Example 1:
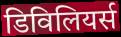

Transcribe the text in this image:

डिविलियर्स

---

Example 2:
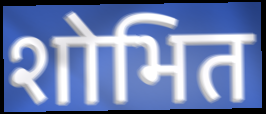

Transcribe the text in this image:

शोभित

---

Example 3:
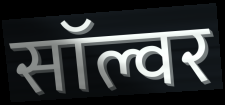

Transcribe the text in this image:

सॉल्वर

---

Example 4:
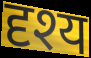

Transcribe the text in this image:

दृश्‍य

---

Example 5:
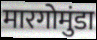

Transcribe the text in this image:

मारगोमुंडा